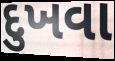
દુખવા